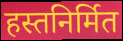
हस्तनिर्मित